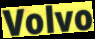
Volvo